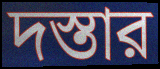
দস্তার